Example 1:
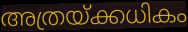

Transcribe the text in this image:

അത്രയ്ക്കധികം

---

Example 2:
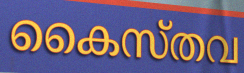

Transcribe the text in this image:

കൈസ്തവ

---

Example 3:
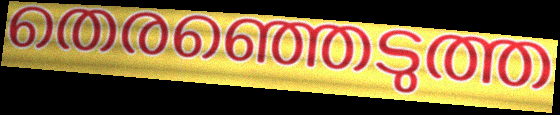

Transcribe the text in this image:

തെരഞ്ഞെടുത്ത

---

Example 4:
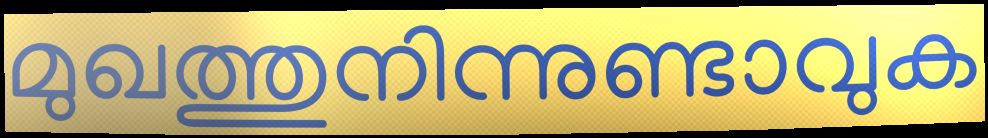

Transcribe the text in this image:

മുഖത്തുനിന്നുണ്ടാവുക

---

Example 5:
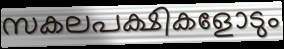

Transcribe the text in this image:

സകലപക്ഷികളോടും